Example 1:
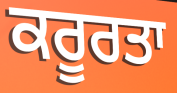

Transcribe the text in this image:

ਕਰੂਰਤਾ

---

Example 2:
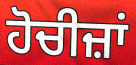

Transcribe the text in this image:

ਹੋਚੀਜ਼ਾਂ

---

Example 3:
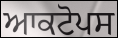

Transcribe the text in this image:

ਆਕਟੋਪਸ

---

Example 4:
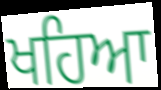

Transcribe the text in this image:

ਖਹਿਆ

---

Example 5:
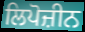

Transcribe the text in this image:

ਲਿਪੋਜ਼ੀਨ